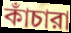
কাঁচারা